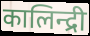
कालिन्द्री